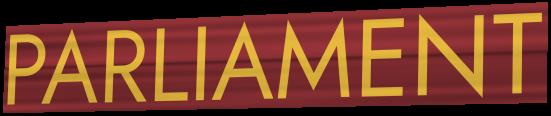
PARLIAMENT